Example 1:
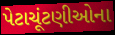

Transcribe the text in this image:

પેટાચૂંટણીઓના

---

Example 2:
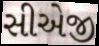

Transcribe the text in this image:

સીએજી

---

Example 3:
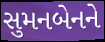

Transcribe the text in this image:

સુમનબેનને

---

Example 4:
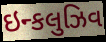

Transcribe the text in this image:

ઇન્કલુઝિવ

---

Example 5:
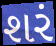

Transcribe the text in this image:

શરં